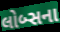
લોબ્સના